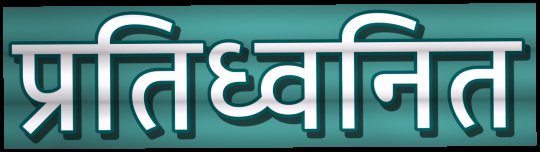
प्रतिध्वनित